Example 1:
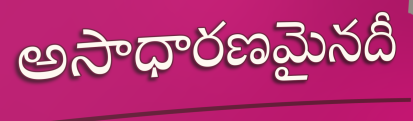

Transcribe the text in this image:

అసాధారణమైనదీ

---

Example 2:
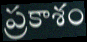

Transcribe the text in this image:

ప్రకాశం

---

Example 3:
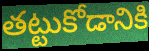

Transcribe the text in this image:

తట్టుకోడానికి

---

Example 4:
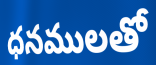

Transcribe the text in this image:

ధనములతో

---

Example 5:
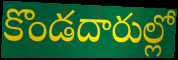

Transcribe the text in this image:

కొండదారుల్లో